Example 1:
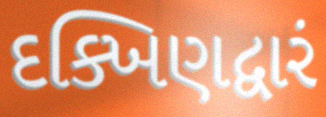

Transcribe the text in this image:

દક્ખિણદ્વારં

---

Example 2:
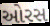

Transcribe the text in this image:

ઓરસ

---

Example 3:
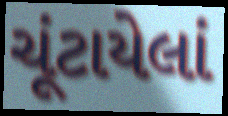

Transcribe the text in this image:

ચૂંટાયેલાં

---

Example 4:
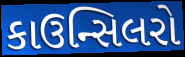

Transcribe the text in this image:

કાઉન્સિલરો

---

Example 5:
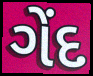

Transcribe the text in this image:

ગેંદ